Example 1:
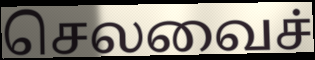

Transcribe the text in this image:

செலவைச்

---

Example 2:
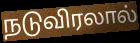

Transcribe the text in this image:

நடுவிரலால்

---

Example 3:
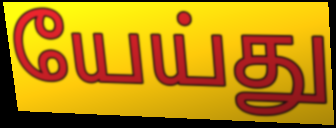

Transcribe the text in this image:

யேய்து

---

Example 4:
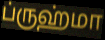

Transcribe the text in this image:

ப்ருஹ்மா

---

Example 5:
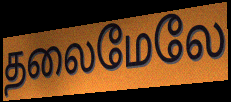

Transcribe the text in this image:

தலைமேலே